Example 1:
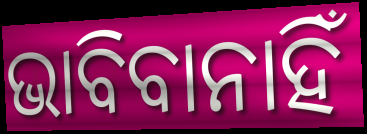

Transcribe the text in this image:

ଭାବିବାନାହିଁ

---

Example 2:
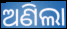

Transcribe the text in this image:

ଅଣିଲା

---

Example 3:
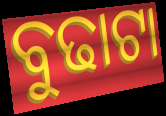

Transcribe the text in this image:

ବୁଢାଟା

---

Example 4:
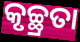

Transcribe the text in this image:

କୃଚ୍ଛ୍ରତା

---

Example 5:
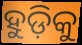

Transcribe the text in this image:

ହୁଡ଼ିକୁ